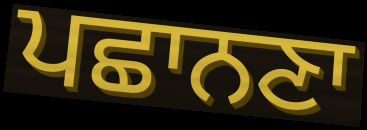
ਪਛਾਨਣਾ